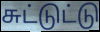
சுட்டுட்டு